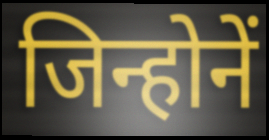
जिन्होनें